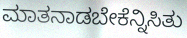
ಮಾತನಾಡಬೇಕೆನ್ನಿಸಿತು